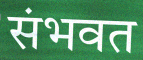
संभवत